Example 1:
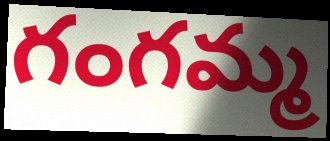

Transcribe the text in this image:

గంగమ్మ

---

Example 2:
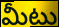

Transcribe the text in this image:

మీటు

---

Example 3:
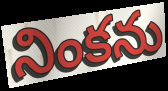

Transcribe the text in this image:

నింకను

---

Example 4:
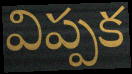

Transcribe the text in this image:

విప్పక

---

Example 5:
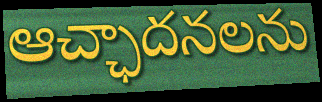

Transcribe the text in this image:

ఆచ్ఛాదనలను